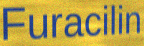
Furacilin